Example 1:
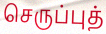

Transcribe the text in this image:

செருப்புத்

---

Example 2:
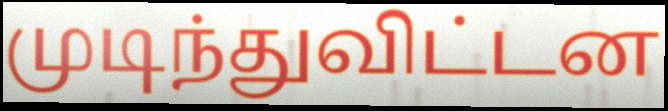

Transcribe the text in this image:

முடிந்துவிட்டன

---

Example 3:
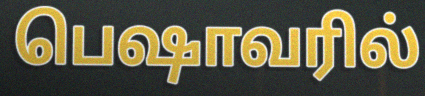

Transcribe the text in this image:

பெஷாவரில்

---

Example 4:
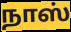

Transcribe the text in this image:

நாஸ்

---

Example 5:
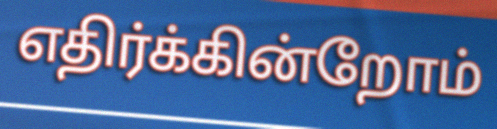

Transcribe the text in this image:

எதிர்க்கின்றோம்